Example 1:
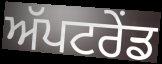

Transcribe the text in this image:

ਅੱਪਟਰੇਂਡ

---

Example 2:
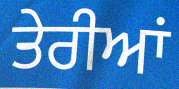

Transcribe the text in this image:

ਤੇਰੀਆਂ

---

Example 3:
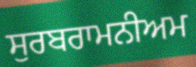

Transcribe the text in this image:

ਸੁਰਬਰਾਮਨੀਅਮ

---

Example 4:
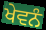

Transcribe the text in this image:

ਖੇਵਨੰ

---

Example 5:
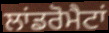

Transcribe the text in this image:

ਲਾਂਡਰੋਮੈਟਾਂ